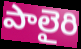
పాలైరి